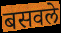
बसवले